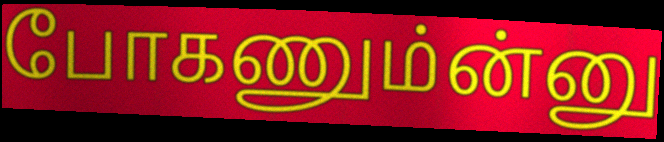
போகணும்ன்னு